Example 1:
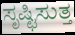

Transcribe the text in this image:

ಸೃಷ್ಟಿಸುತ್ತ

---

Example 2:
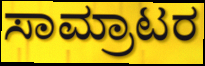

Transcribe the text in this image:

ಸಾಮ್ರಾಟರ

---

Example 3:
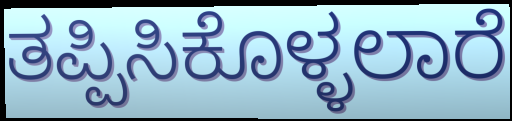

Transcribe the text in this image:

ತಪ್ಪಿಸಿಕೊಳ್ಳಲಾರೆ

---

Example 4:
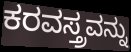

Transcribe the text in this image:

ಕರವಸ್ತ್ರವನ್ನು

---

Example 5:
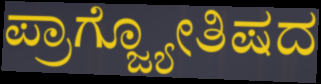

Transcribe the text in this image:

ಪ್ರಾಗ್ಜ್ಯೋತಿಷದ